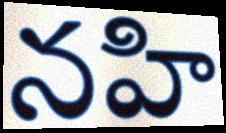
నహి